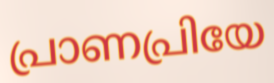
പ്രാണപ്രിയേ